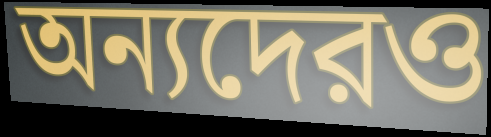
অন্যদেরও